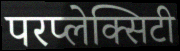
परप्लेक्सिटी